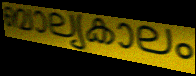
ബാല്യകാലം